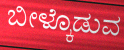
ಬೀಳ್ಕೊಡುವ